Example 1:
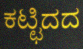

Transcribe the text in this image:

ಕಟ್ಟಿದದ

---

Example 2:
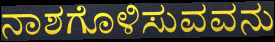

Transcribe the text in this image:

ನಾಶಗೊಳಿಸುವವನು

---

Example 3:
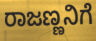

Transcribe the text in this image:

ರಾಜಣ್ಣನಿಗೆ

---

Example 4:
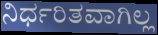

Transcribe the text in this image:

ನಿರ್ಧರಿತವಾಗಿಲ್ಲ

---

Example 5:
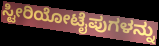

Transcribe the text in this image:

ಸ್ಟೀರಿಯೋಟೈಪುಗಳನ್ನು